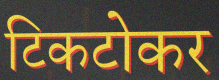
टिकटोकर